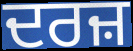
ਦਰਜ਼